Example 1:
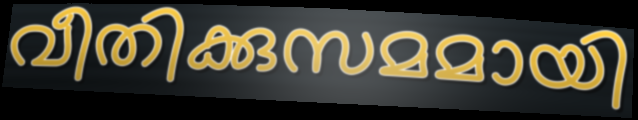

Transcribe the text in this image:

വീതിക്കുസമമായി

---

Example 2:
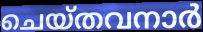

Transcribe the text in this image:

ചെയ്തവനാർ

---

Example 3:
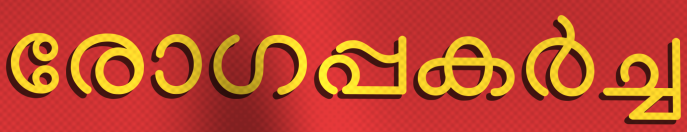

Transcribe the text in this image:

രോഗപ്പകർച്ച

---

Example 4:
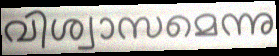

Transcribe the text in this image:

വിശ്വാസമെന്നു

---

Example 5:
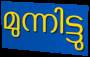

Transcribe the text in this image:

മുന്നിട്ടു